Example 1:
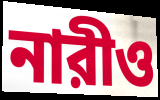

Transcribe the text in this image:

নারীও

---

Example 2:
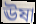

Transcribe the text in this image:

ঊষা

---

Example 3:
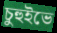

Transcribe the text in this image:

চুহুইভে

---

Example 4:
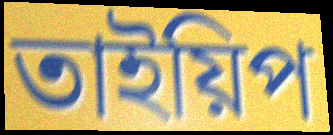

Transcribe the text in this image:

তাইয়িপ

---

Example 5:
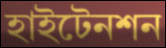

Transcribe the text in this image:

হাইটেনশন